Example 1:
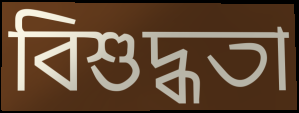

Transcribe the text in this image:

বিশুদ্ধতা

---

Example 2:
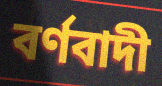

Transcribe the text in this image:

বৰ্ণবাদী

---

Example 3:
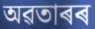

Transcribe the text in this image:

অৱতাৰৰ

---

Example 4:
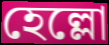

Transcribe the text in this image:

হেল্লো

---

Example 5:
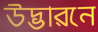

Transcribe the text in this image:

উদ্ভাৱনে